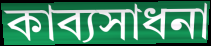
কাব্যসাধনা